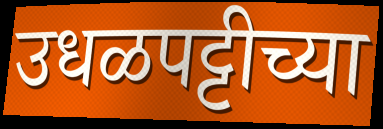
उधळपट्टीच्या